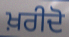
ਖ਼ਰੀਦੋ